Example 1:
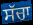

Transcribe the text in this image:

ਸੱਚਾ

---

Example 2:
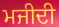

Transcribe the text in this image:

ਮਜੀਦੀ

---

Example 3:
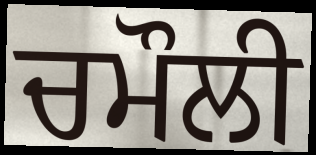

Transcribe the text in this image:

ਚਮੌਲੀ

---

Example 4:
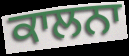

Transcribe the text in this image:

ਕਾਲਨਾ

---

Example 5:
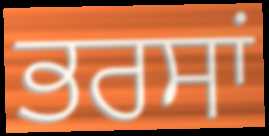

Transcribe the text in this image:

ਭਰਸਾਂ